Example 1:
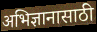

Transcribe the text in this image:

अभिज्ञानासाठी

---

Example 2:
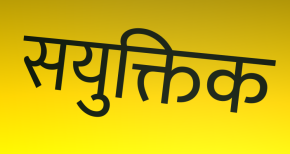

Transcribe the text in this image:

सयुक्तिक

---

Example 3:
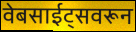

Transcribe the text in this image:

वेबसाईट्सवरून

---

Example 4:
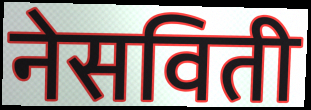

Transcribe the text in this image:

नेसविती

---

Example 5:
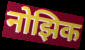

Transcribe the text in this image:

नोझिक